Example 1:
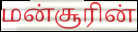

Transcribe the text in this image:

மன்சூரின்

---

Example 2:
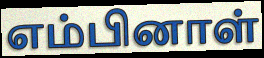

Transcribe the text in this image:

எம்பினாள்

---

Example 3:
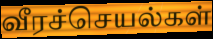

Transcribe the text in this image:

வீரச்செயல்கள்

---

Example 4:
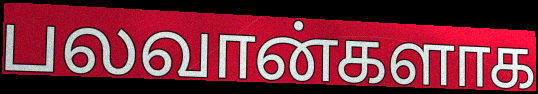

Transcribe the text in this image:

பலவான்களாக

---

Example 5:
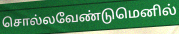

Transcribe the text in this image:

சொல்லவேண்டுமெனில்